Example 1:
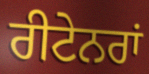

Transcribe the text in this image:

ਰੀਟੇਨਰਾਂ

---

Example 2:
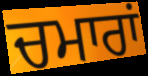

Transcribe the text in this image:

ਚਮਾਰਾਂ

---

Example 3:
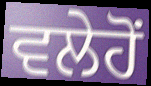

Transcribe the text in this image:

ਵਲੇਹੋਂ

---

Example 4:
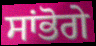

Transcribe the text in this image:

ਸਾਂਭੋਗੇ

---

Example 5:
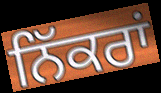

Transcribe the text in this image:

ਨਿੱਕਰਾਂ